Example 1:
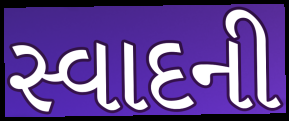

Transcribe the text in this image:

સ્વાદની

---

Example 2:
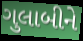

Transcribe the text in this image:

ગુલાબીને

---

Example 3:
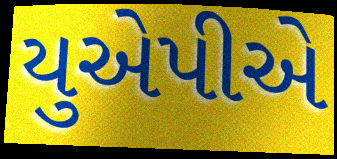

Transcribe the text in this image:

યુએપીએ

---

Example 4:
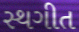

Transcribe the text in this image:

સ્થગીત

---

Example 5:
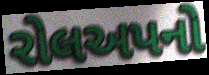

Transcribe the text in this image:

રોલઅપનો